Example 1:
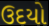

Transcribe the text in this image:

ઉદયો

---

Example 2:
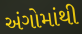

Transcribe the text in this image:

અંગોમાંથી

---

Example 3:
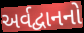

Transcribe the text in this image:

અર્વદ્વાનનો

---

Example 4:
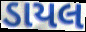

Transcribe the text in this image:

ડાયલ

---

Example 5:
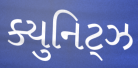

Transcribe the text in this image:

ક્યુનિટ્ઝ